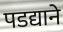
पडद्याने